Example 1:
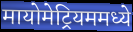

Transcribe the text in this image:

मायोमेट्रियममध्ये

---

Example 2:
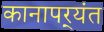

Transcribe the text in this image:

कानापर्यंत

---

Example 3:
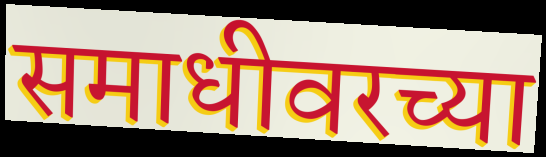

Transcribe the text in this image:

समाधीवरच्या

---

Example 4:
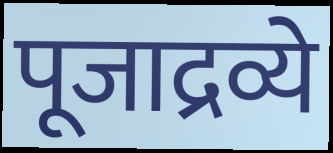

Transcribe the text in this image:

पूजाद्रव्ये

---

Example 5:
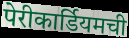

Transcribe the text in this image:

पेरीकार्डियमची